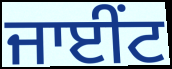
ਜਾਈਂਟ